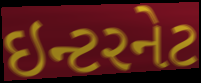
ઇન્ટરનેટ